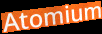
Atomium